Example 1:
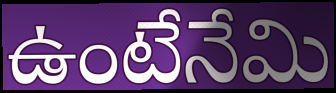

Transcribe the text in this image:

ఉంటేనేమి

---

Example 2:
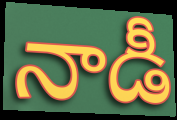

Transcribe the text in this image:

నాడీ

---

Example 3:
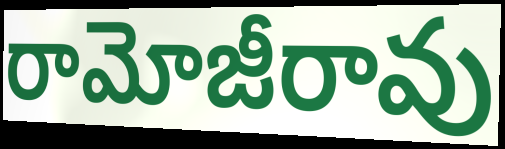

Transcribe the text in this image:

రామోజీరావు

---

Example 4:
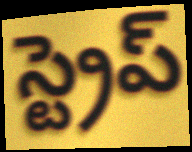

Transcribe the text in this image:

స్ట్రెప్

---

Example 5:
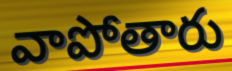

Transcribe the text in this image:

వాపోతారు